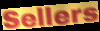
Sellers